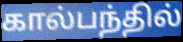
கால்பந்தில்